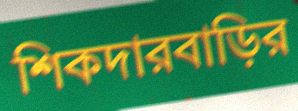
শিকদারবাড়ির